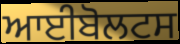
ਆਈਬੋਲਟਸ